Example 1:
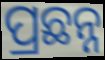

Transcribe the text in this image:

ପ୍ରଛନ୍ନ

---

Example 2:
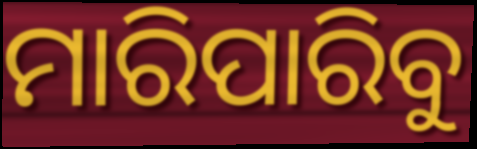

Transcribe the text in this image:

ମାରିପାରିବୁ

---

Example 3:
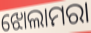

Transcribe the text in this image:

ଝୋଲାମରା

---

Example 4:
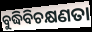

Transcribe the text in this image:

ବୁଦ୍ଧିବିଚକ୍ଷଣତା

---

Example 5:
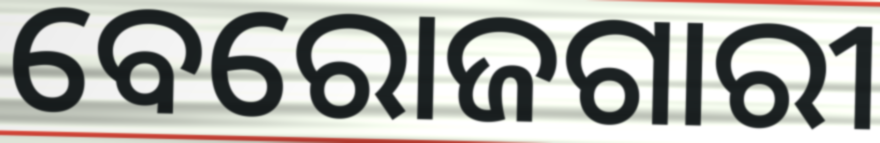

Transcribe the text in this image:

ବେରୋଜଗାରୀ